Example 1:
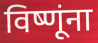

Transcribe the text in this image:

विष्णूंना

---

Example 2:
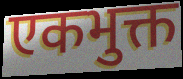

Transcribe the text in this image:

एकभुक्त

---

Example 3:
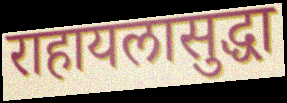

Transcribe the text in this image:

राहायलासुद्धा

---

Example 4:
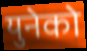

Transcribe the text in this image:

युनेको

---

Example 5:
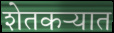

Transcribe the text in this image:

शेतकऱ्यात